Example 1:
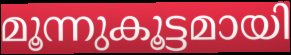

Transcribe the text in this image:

മൂന്നുകൂട്ടമായി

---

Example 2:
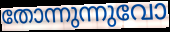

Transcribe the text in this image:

തോന്നുന്നുവോ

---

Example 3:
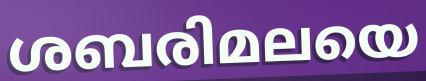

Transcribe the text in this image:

ശബരിമലയെ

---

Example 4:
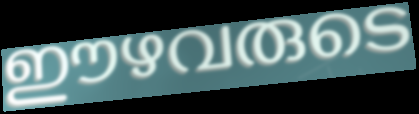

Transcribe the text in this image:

ഈഴവരുടെ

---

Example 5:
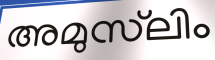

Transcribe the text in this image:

അമുസ്‌ലിം